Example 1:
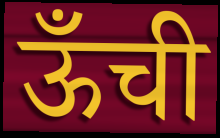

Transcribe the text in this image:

ऊँची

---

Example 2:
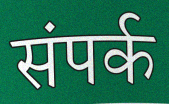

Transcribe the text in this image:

संपर्क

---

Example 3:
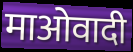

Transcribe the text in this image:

माओवादी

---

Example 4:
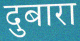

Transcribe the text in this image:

दुबारा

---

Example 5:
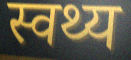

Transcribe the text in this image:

स्वथ्य